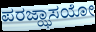
ಪರಜ್ಝಾಸಯೋ